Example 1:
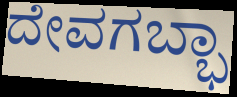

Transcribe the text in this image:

ದೇವಗಬ್ಭಾ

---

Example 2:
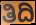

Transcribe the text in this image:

ತಿದಿ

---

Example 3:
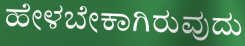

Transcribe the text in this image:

ಹೇಳಬೇಕಾಗಿರುವುದು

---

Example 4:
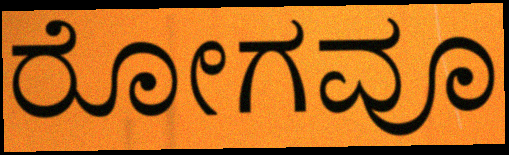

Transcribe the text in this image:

ರೋಗವೂ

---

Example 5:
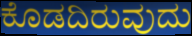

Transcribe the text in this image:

ಕೊಡದಿರುವುದು